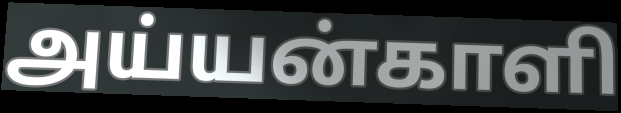
அய்யன்காளி